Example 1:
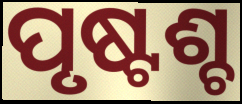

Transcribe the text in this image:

ପୃଷ୍ଟଶ୍ଚ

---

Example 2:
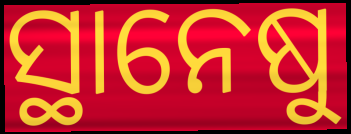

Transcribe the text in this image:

ସ୍ଥାନେଷୁ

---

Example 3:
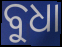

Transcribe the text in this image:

ବୁଧା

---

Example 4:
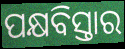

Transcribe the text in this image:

ପକ୍ଷବିସ୍ତାର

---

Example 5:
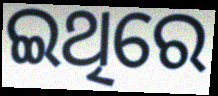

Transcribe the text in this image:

ଇଥିରେ